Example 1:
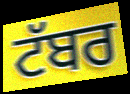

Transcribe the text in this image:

ਟੱਬਰ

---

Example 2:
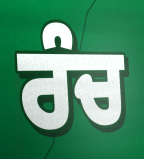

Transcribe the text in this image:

ਰੰਚ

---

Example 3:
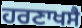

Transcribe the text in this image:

ਹਰਣਾਖਸੈ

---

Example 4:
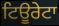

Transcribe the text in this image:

ਟਿਊਰੇਟਾ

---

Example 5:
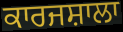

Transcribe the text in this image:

ਕਾਰਜਸ਼ਾਲਾ